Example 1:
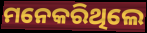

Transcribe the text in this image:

ମନେକରିଥିଲେ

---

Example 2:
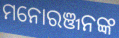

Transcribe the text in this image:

ମନୋରଞ୍ଜନଙ୍କ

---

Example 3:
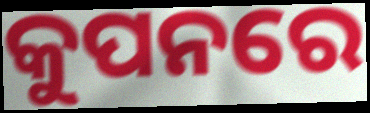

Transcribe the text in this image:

କୁପନରେ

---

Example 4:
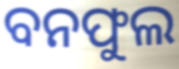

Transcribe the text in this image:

ବନଫୁଲ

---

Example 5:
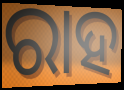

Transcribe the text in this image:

ରାହ